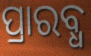
ପ୍ରାରବ୍ଧ